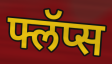
फ्लॅप्स